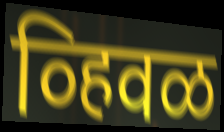
व्हिवळ